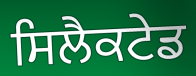
ਸਿਲੈਕਟੇਡ